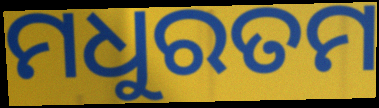
ମଧୁରତମ